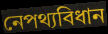
নেপথ্যবিধান